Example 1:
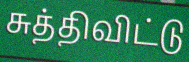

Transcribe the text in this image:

சுத்திவிட்டு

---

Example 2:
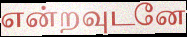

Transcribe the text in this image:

என்றவுடனே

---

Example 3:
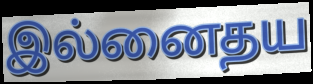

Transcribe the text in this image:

இல்னைதய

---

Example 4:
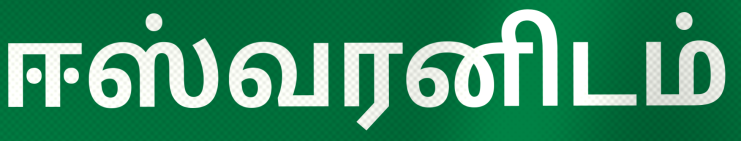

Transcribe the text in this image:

ஈஸ்வரனிடம்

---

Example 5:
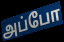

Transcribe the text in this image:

அப்போ